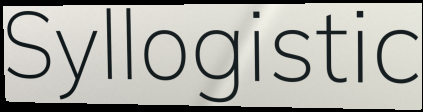
Syllogistic